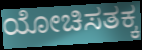
ಯೋಚಿಸತಕ್ಕ